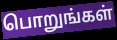
பொறுங்கள்